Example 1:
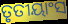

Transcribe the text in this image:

ତୃତୀୟାଂସ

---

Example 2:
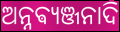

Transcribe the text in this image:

ଅନ୍ନଵ୍ୟଞ୍ଜନାଦି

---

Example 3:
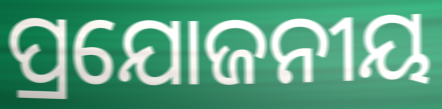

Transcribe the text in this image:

ପ୍ରଯୋଜନୀୟ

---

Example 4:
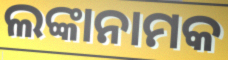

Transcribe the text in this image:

ଲଙ୍କାନାମକ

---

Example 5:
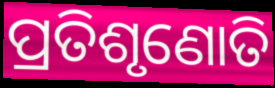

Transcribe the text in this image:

ପ୍ରତିଶୃଣୋତି